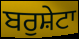
ਬਰੁਸ਼ੇਟਾ